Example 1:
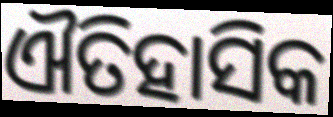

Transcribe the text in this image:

ଐତିହାସିକ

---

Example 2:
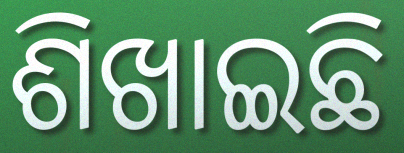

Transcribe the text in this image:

ଶିଖାଇଛି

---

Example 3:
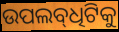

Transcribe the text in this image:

ଉପଲବ୍‌ଧିଟିକୁ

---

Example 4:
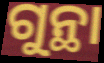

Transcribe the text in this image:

ଗୁନ୍ଥା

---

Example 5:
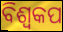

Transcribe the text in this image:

ବିଶ୍ୱକପ